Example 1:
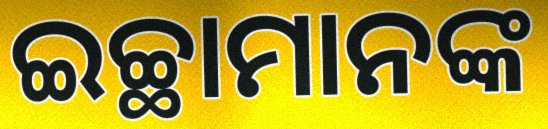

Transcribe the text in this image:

ଇଚ୍ଛାମାନଙ୍କ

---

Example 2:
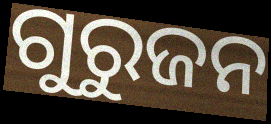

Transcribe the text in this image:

ଗୁରୁଜନ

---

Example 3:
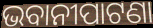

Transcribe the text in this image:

ଭବାନୀପାଟଣା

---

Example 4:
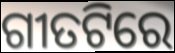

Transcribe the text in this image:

ଗୀତଟିରେ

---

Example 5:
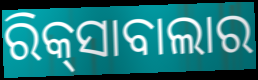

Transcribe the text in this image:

ରିକ୍‌ସାବାଲାର